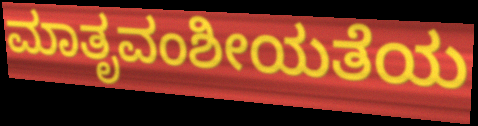
ಮಾತೃವಂಶೀಯತೆಯ